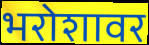
भरोशावर